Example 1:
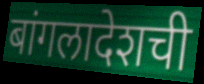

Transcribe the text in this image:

बांगलादेशची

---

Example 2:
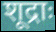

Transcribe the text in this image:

शूद्राः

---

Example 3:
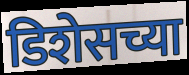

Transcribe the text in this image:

डिशेसच्या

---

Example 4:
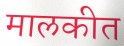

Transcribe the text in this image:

मालकीत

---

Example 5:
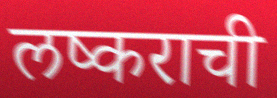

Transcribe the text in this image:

लष्कराची